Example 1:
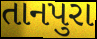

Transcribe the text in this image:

તાનપુરા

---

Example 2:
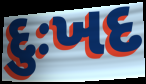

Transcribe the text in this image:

દુઃખદ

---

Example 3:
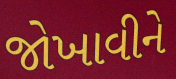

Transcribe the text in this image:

જોખાવીને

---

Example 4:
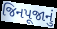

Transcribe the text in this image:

જિનપૂજાનું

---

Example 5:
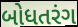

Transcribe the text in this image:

બોધતરંગ